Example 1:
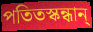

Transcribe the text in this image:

পতিতস্কন্ধান্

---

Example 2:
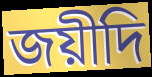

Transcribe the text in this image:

জয়ীদি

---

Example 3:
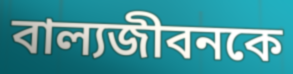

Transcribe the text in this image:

বাল্যজীবনকে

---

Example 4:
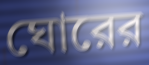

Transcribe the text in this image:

ঘোরের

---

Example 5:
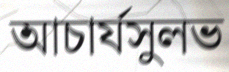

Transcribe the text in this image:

আচার্যসুলভ